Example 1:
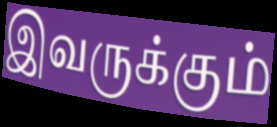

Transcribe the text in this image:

இவருக்கும்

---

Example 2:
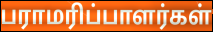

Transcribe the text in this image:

பராமரிப்பாளர்கள்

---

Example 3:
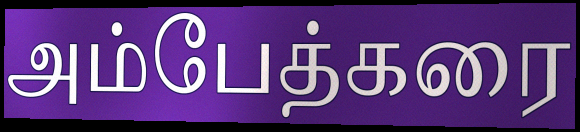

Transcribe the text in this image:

அம்பேத்கரை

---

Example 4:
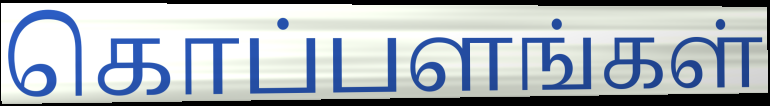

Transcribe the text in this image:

கொப்பளங்கள்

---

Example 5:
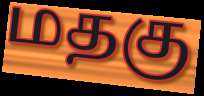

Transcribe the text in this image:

மதகு